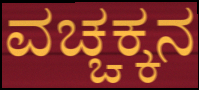
ವಚ್ಚಕ್ಕನ